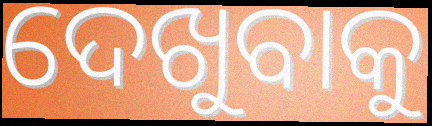
ଦେଖୁବାକୁ